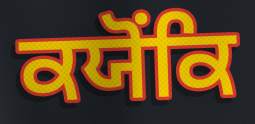
ਕਯੋਂਕਿ